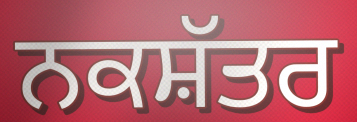
ਨਕਸ਼ੱਤਰ